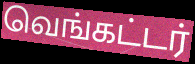
வெங்கட்டர்